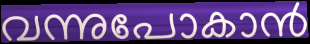
വന്നുപോകാൻ